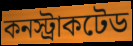
কনস্ট্রাকটেড